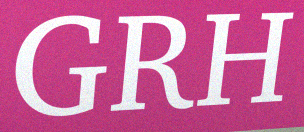
GRH